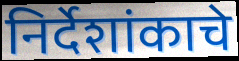
निर्देशांकाचे